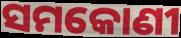
ସମକୋଣୀ